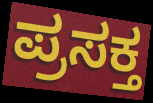
ಪ್ರಸಕ್ತ